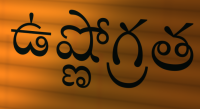
ఉష్ణోగ్రత